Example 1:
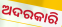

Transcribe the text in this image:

ଅଦରକାରି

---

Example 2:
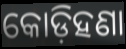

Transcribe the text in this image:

କୋଡ଼ିହଣା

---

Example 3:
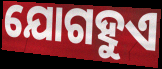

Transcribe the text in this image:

ଯୋଗହୁଏ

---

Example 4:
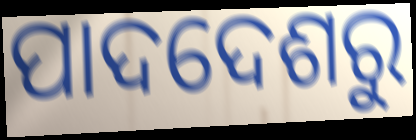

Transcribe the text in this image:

ପାଦଦେଶରୁ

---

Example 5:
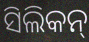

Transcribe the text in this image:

ସିଲିକନ୍